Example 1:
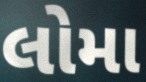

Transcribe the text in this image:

લોમા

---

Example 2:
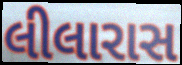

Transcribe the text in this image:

લીલારાસ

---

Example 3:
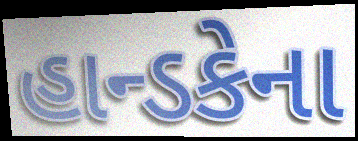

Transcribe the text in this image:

હાન્ડકેના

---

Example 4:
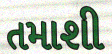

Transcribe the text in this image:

તમાશી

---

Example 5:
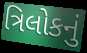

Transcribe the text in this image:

ત્રિલોકનું